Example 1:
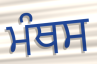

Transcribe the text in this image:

ਮੰਥਸ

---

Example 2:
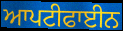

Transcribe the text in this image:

ਆਪਟੀਫਾਈਨ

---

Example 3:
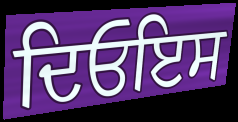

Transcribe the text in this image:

ਦਿਓਇਸ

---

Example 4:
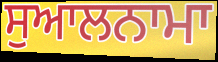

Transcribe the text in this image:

ਸੁਆਲਨਾਮਾ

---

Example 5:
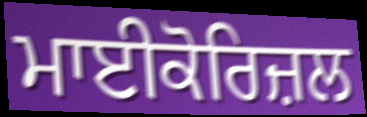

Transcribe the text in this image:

ਮਾਈਕੋਰਿਜ਼ਲ